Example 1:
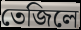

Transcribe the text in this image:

তেজিলে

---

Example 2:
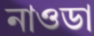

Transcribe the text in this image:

নাওডা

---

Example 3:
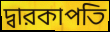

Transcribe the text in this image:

দ্বারকাপতি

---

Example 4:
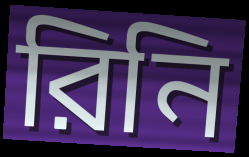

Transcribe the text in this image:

রিনি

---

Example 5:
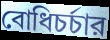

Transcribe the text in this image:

বোধিচর্চার